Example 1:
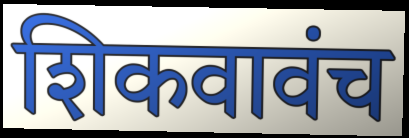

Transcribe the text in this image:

शिकवावंच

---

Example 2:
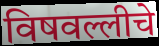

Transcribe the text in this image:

विषवल्लीचे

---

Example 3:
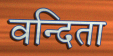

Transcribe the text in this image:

वन्दिता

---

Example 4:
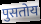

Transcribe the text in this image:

पुसतोय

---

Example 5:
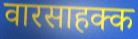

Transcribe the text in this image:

वारसाहक्क